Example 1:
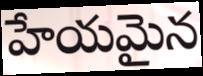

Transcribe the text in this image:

హేయమైన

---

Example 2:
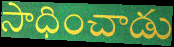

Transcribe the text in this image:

సాధించాడు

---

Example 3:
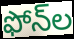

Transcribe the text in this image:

ఫోన్‌ల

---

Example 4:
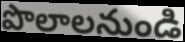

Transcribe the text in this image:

పొలాలనుండి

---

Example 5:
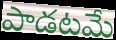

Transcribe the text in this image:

పాడటమే